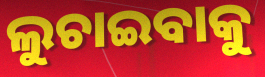
ଲୁଚାଇବାକୁ